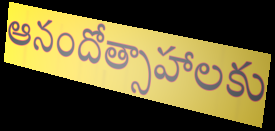
ఆనందోత్సాహాలకు